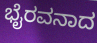
ಭೈರವನಾದ